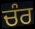
ਚੰਰ